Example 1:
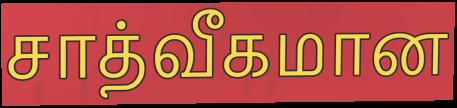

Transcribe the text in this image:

சாத்வீகமான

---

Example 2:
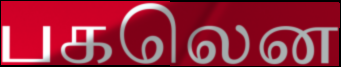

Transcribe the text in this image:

பகலென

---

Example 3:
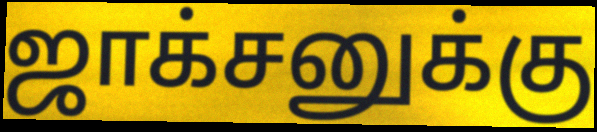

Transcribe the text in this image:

ஜாக்சனுக்கு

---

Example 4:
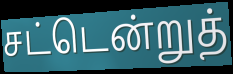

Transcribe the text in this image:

சட்டென்றுத்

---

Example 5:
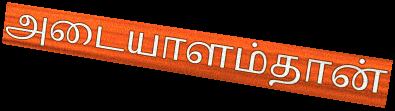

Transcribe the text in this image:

அடையாளம்தான்